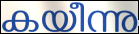
കയീന്നു